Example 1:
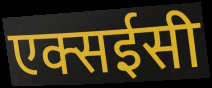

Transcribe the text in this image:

एक्सईसी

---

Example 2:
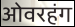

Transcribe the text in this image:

ओवरहंग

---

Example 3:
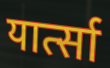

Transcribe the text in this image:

यार्त्सा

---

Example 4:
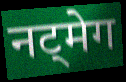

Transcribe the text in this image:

नट्मेग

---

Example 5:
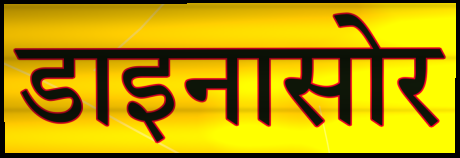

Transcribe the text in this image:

डाइनासोर